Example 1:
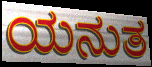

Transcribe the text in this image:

ಯನುತ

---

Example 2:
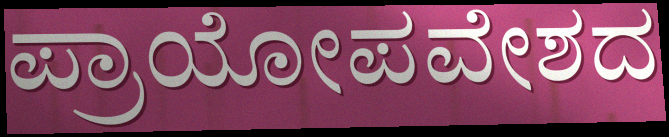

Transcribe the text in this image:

ಪ್ರಾಯೋಪವೇಶದ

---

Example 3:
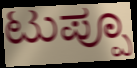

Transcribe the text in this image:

ಟುಪ್ಪೂ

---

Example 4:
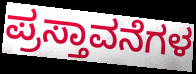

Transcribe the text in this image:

ಪ್ರಸ್ತಾವನೆಗಳ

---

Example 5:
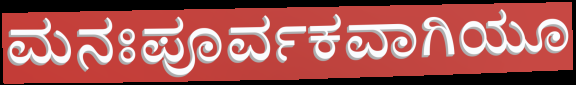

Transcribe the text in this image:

ಮನಃಪೂರ್ವಕವಾಗಿಯೂ